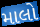
માલો